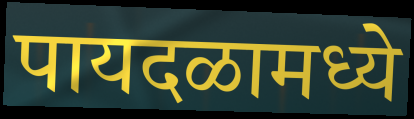
पायदळामध्ये